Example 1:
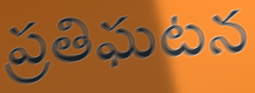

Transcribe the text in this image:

ప్రతిఘటన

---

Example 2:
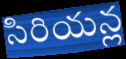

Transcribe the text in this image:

సిరియన్ల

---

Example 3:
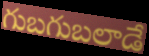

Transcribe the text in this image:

గుబగుబలాడే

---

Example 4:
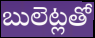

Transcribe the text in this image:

బులెట్లతో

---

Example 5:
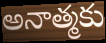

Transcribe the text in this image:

అనాత్మకు